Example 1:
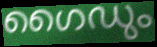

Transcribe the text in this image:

ഗൈഡും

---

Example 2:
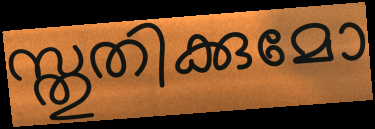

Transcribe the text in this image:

സ്തുതിക്കുമോ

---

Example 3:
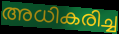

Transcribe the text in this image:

അധികരിച്ച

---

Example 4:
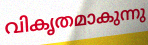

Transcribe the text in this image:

വികൃതമാകുന്നു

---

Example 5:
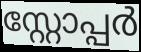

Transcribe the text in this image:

സ്റ്റോപ്പർ